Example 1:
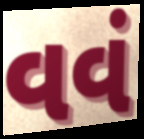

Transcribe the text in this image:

વવં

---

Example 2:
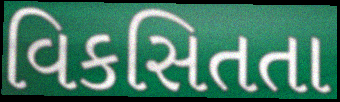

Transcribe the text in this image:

વિકસિતતા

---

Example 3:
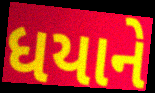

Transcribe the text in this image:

ધયાને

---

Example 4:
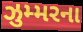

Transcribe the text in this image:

ઝુમ્મરના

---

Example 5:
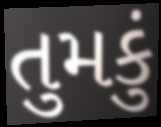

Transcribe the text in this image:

તુમકું